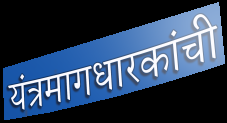
यंत्रमागधारकांची